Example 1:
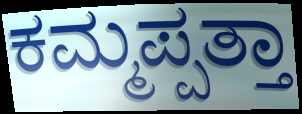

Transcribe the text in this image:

ಕಮ್ಮಪ್ಪತ್ತಾ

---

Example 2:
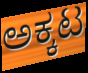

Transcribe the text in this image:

ಅಕ್ಕಟ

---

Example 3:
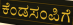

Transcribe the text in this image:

ಕೆಂಡಸಂಪಿಗೆ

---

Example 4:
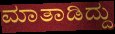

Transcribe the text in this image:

ಮಾತಾಡಿದ್ದು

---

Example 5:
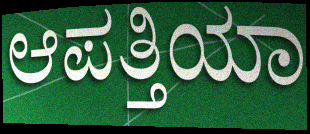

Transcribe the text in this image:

ಆಪತ್ತಿಯಾ